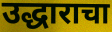
उद्धाराचा